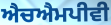
ਐਚਐਮਪੀਵੀ